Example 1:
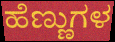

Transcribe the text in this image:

ಹೆಣ್ಣುಗಳ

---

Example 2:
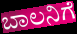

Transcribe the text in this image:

ಬಾಲನಿಗೆ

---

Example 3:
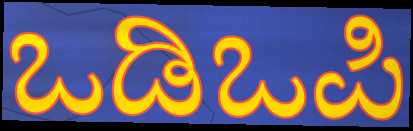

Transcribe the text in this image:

ಒಡಿಒಪಿ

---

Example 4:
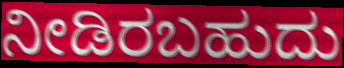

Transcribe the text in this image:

ನೀಡಿರಬಹುದು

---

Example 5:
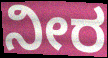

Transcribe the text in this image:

ನೀರ